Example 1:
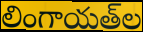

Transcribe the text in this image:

లింగాయత్‌ల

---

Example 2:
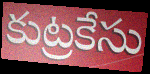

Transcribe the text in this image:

కుట్రకేసు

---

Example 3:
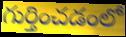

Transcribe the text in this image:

గుర్తించడంలో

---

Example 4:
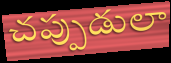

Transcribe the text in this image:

చప్పుడులా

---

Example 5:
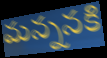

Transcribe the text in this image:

మన్ననకి